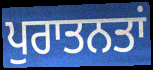
ਪੁਰਾਤਨਤਾਂ